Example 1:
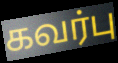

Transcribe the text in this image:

கவர்பு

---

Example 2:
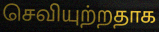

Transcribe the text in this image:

செவியுற்றதாக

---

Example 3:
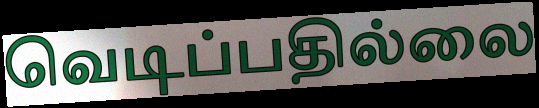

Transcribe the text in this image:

வெடிப்பதில்லை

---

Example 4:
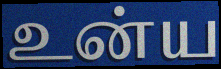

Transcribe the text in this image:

உன்ய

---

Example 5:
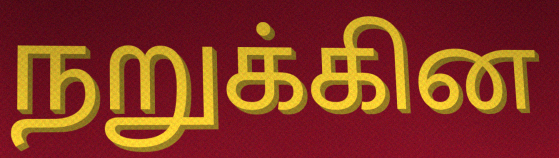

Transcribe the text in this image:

நறுக்கின